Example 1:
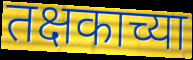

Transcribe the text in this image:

तक्षकाच्या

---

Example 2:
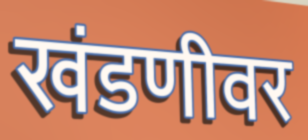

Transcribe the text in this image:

खंडणीवर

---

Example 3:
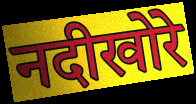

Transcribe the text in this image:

नदीखोरे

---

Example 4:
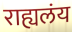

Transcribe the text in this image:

राह्यलंय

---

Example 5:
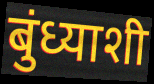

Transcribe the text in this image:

बुंध्याशी